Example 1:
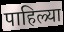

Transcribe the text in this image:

पाहिल्या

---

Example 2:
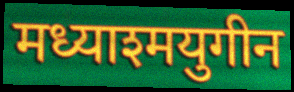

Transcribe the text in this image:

मध्याश्मयुगीन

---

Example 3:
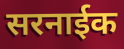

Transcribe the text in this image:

सरनाईक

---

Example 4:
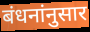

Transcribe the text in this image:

बंधनांनुसार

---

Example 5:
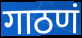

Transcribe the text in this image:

गाठणं